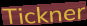
Tickner